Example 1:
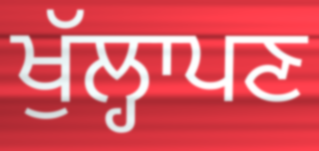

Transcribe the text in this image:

ਖੁੱਲ੍ਹਾਪਣ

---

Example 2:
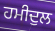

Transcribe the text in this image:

ਹਮੀਦੁਲ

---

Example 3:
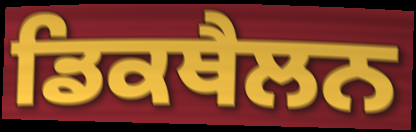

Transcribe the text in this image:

ਡਿਕਥੈਲਨ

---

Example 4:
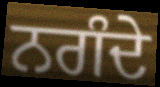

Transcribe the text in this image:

ਨਗੰਦੇ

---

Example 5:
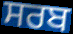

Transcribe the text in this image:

ਸਰਬ